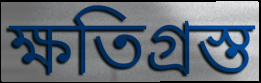
ক্ষতিগ্ৰস্ত